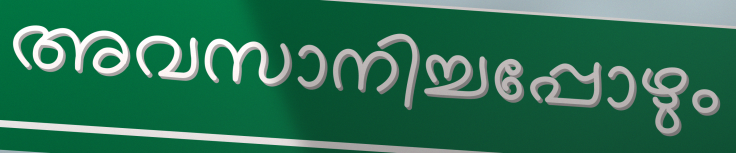
അവസാനിച്ചപ്പോഴും